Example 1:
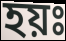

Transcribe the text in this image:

হয়ঃ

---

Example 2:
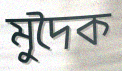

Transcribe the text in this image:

মুদৈক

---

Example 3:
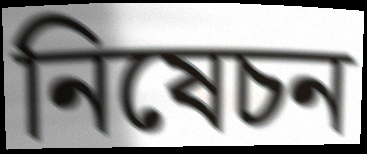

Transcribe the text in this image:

নিষেচন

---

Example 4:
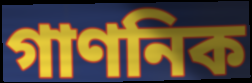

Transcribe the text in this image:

গাণনিক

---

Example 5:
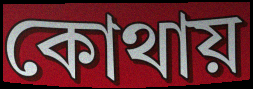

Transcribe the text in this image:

কোথায়